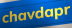
chavdapr